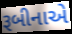
રૂબીનાએ